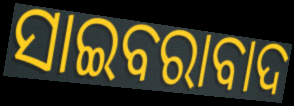
ସାଇବରାବାଦ